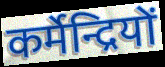
कर्मेन्द्रियों